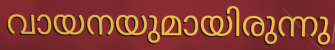
വായനയുമായിരുന്നു